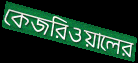
কেজরিওয়ালের